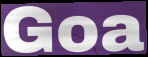
Goa